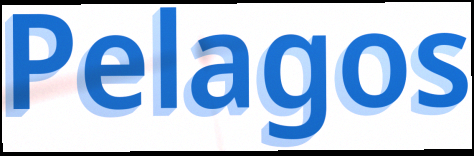
Pelagos